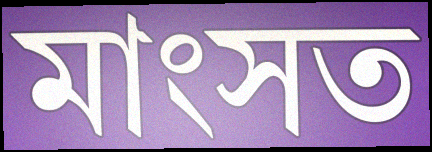
মাংসত